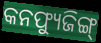
କନଫ୍ୟୁଜିଙ୍ଗ୍